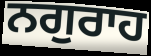
ਨਗੁਰਾਹ